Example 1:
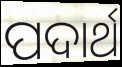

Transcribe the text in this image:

ପଦାର୍ଥ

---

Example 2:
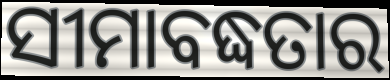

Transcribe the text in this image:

ସୀମାବଦ୍ଧତାର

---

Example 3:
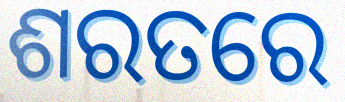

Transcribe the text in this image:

ଶରତରେ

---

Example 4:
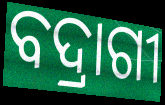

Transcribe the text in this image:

ବଦ୍ରାଗୀ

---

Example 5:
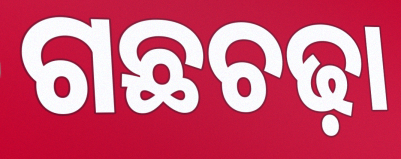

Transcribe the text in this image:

ଗଛଚଢ଼ା